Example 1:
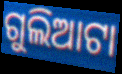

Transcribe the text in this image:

ଗୁଲିଆଟା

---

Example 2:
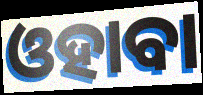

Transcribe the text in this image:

ଓହାବା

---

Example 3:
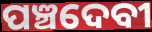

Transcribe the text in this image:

ପଞ୍ଚଦେବୀ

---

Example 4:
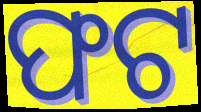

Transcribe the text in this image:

ଫଟ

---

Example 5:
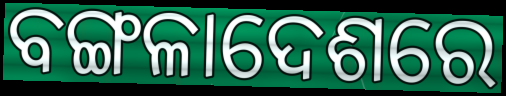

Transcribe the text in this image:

ବଙ୍ଗଳାଦେଶରେ